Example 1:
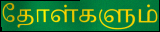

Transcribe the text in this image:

தோள்களும்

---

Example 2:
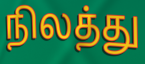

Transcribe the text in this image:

நிலத்து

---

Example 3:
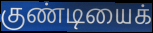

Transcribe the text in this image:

குண்டியைக்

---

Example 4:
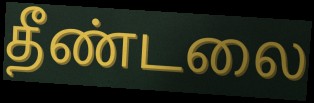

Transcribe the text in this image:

தீண்டலை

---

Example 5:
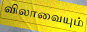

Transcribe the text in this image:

விலாவையும்